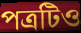
পত্রটিও